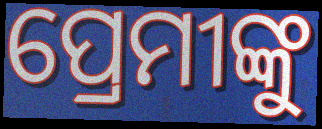
ପ୍ରେମୀଙ୍କୁ